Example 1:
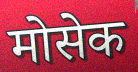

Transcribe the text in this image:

मोसेक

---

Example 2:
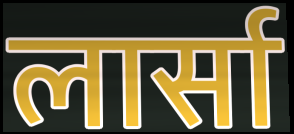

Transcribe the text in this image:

लार्सा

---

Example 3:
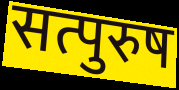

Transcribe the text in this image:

सत्पुरुष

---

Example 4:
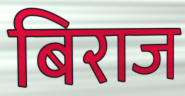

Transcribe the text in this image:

बिराज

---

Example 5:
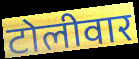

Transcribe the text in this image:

टोलीवार